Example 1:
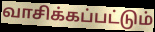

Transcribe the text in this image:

வாசிக்கப்பட்டும்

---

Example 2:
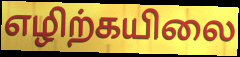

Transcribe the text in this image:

எழிற்கயிலை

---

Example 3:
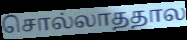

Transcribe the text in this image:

சொல்லாததால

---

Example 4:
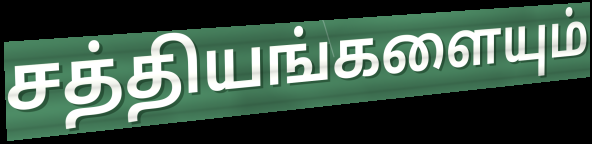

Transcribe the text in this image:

சத்தியங்களையும்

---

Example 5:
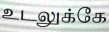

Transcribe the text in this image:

உடலுக்கே